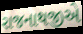
રાજનાથજીએ